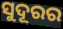
ସୁଦୂରର